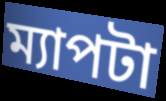
ম্যাপটা